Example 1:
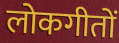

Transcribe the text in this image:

लोकगीतों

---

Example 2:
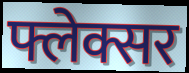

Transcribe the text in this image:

फ्लेक्सर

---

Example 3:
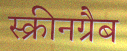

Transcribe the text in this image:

स्क्रीनग्रैब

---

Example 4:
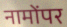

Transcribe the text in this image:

नामोंपर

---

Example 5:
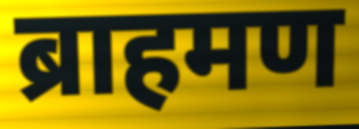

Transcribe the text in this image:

ब्राहमण